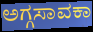
ಅಗ್ಗಸಾವಕಾ